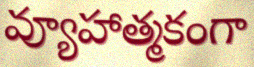
వ్యూహాత్మకంగా